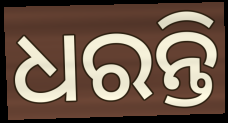
ଧରନ୍ତି